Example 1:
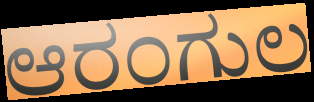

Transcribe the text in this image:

ಆರಂಗುಲ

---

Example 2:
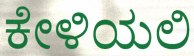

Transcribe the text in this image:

ಕೇಳಿಯಲಿ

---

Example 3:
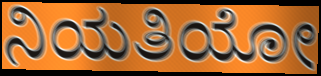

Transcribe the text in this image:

ನಿಯತಿಯೋ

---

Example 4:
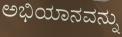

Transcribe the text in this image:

ಅಭಿಯಾನವನ್ನು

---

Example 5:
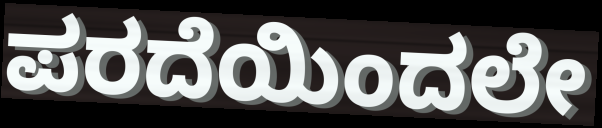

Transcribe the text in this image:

ಪರದೆಯಿಂದಲೇ